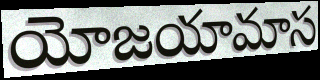
యోజయామాస